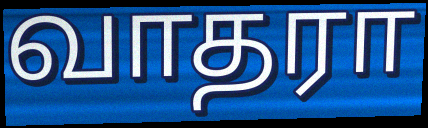
வாதரா